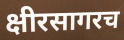
क्षीरसागरच